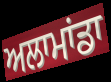
ਅਲਾਮਾਂਡਾ